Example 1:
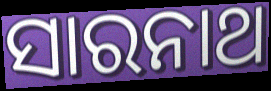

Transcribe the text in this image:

ସାରନାଥ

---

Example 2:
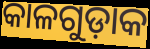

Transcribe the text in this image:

କାଳଗୁଡ଼ାକ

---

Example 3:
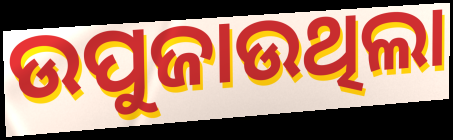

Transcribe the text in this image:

ଉପୁଜାଉଥିଲା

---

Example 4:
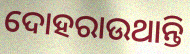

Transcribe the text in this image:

ଦୋହରାଉଥାନ୍ତି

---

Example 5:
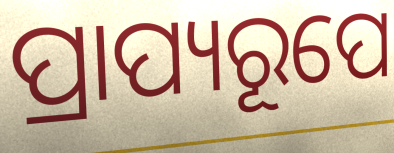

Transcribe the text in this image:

ପ୍ରାପ୍ୟରୂପେ